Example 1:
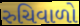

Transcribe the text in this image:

રુચિવાળો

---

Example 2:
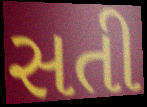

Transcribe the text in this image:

સતી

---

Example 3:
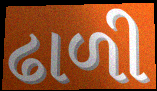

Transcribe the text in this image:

ઢાળી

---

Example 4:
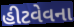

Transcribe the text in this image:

હીટવેવના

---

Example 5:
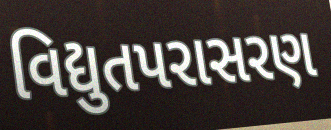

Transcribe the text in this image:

વિદ્યુતપરાસરણ